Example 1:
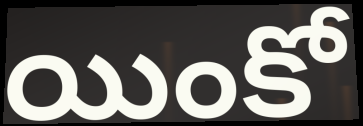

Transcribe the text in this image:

యింకో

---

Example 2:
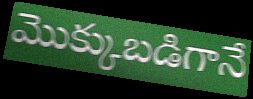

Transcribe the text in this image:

మొక్కుబడిగానే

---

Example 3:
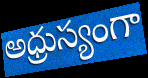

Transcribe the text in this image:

అధ్రుస్యంగా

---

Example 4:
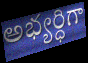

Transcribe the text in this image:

అభ్యర్ధిగా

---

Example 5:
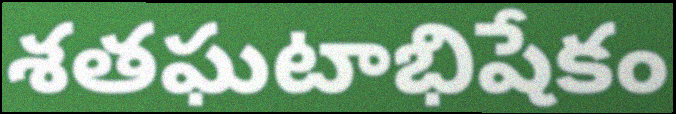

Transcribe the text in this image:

శతఘటాభిషేకం